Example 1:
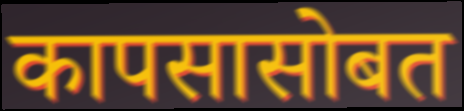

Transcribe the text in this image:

कापसासोबत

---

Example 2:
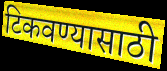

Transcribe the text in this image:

टिकवण्यासाठी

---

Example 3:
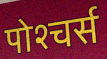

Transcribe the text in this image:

पोश्चर्स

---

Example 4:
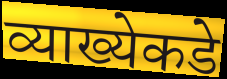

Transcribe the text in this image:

व्याख्येकडे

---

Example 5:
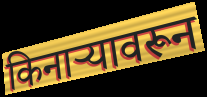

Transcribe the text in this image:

किनाऱ्यावरून